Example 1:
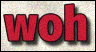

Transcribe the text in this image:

woh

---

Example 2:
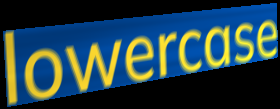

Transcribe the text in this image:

lowercase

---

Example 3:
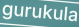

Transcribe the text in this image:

gurukula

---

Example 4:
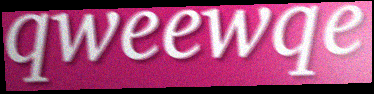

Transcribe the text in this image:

qweewqe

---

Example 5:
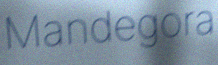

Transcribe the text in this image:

Mandegora